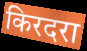
किरदरा